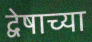
द्वेषाच्या